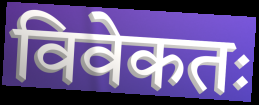
विवेकतः